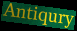
Antiqury